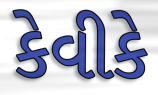
કેવીકે